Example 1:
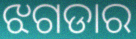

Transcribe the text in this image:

ଝଗଡାର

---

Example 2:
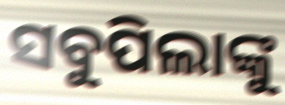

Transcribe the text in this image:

ସବୁପିଲାଙ୍କୁ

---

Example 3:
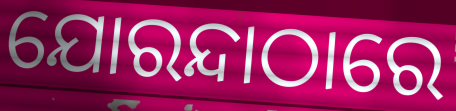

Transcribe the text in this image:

ଯୋରନ୍ଦାଠାରେ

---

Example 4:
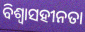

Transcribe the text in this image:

ବିଶ୍ୱାସହୀନତା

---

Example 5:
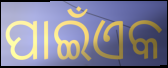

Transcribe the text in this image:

ପାଇଁଏକ